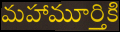
మహామూర్తికి